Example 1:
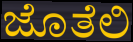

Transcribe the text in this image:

ಜೊತೆಲಿ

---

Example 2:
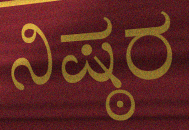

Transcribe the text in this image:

ನಿಷ್ಠರ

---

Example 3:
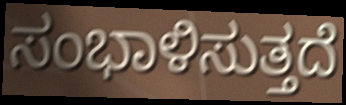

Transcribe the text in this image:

ಸಂಭಾಳಿಸುತ್ತದೆ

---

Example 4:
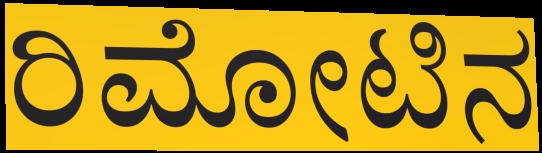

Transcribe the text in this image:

ರಿಮೋಟಿನ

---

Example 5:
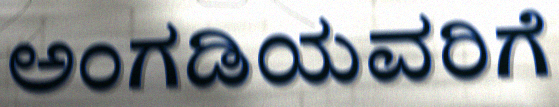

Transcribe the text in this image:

ಅಂಗಡಿಯವರಿಗೆ